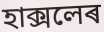
হাক্সলেৰ